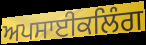
ਅਪਸਾਈਕਲਿੰਗ